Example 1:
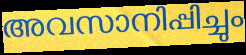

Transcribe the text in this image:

അവസാനിപ്പിച്ചും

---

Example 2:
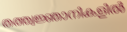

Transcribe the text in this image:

തത്ത്വജ്ഞാനികളിൽ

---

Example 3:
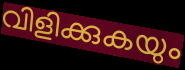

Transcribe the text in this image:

വിളിക്കുകയും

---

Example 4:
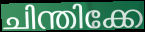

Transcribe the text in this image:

ചിന്തിക്കേ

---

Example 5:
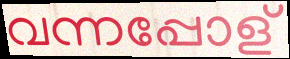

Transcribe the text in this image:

വന്നപ്പോള്